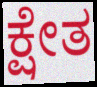
ಕ್ಷೇತ